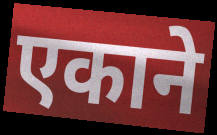
एकाने